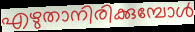
എഴുതാനിരിക്കുമ്പോൾ